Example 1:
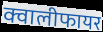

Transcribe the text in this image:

क्वालीफायर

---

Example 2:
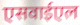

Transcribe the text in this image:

एसवाईएल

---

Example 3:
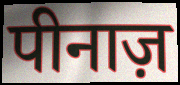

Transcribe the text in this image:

पीनाज़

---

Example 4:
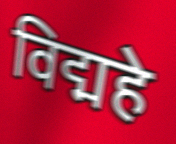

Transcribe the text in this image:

विद्महे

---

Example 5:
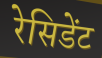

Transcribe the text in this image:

रेसिडेंट